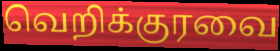
வெறிக்குரவை